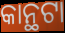
କାନ୍ଥଟା